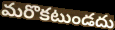
మరొకటుండదు